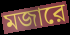
মজারে